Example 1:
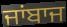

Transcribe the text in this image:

ਜਾਂਬਾਜ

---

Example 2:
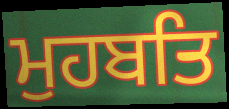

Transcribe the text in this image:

ਮੁਹਬਤਿ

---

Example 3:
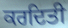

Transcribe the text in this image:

ਕਰਦਿਤੀ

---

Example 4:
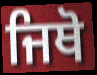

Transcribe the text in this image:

ਜਿਥੋ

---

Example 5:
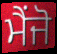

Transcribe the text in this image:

ਮੈਂਜੋ